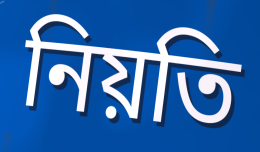
নিয়তি